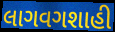
લાગવગશાહી